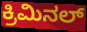
ಕ್ರಿಮಿನಲ್